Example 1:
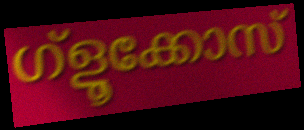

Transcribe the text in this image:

ഗ്ളൂക്കോസ്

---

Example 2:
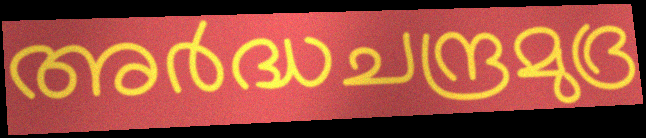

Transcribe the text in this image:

അർദ്ധചന്ദ്രമുദ്ര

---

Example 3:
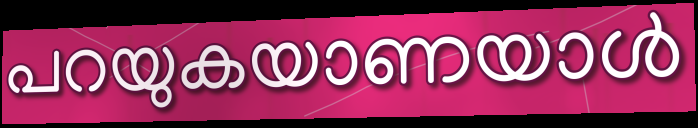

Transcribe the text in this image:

പറയുകയാണയാൾ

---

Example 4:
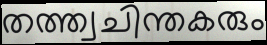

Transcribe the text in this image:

തത്ത്വചിന്തകരും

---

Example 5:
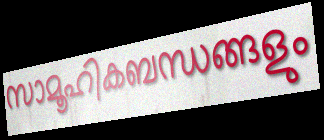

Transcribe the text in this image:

സാമൂഹികബന്ധങ്ങളും